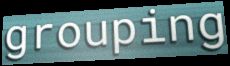
grouping